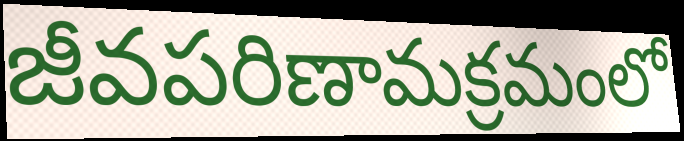
జీవపరిణామక్రమంలో